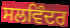
ਸਲਵਿੰਦਰ